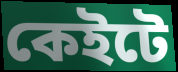
কেইটে